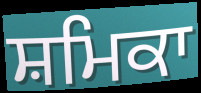
ਸ਼ਮਿਕਾ